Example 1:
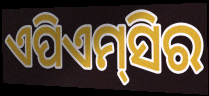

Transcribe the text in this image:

ଏପିଏମ୍‌ସିର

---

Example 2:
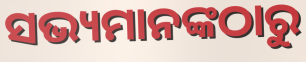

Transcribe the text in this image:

ସଭ୍ୟମାନଙ୍କଠାରୁ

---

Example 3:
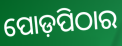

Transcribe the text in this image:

ପୋଡ଼ପିଠାର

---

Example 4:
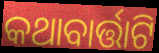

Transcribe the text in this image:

କଥାବାର୍ତ୍ତାଟି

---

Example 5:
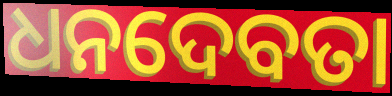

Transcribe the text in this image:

ଧନଦେବତା